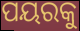
ପୟରକୁ